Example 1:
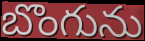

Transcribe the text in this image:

బొంగును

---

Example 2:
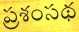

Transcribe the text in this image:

ప్రశంసథ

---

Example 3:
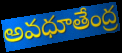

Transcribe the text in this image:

అవధూతేంద్ర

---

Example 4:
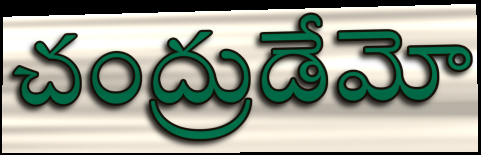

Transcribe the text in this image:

చంద్రుడేమో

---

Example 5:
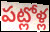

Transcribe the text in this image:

పట్లోళ్ల